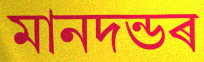
মানদন্ডৰ